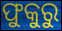
ଫୁକୁରୁ